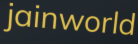
jainworld